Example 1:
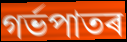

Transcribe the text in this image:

গৰ্ভপাতৰ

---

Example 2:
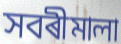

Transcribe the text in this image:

সবৰীমালা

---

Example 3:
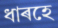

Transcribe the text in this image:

ধাৰহে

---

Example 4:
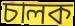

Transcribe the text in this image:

চালক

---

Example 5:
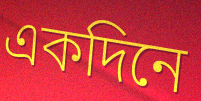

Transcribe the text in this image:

একদিনে